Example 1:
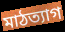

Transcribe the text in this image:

মাঠত্যাগ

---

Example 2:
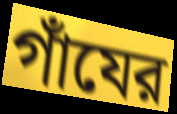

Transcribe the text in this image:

গাঁযের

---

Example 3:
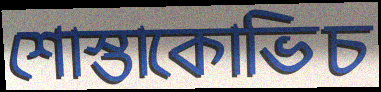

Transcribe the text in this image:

শোস্তাকোভিচ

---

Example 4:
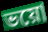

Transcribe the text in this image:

ভয়ো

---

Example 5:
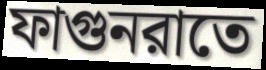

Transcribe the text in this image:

ফাগুনরাতে